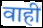
वाही